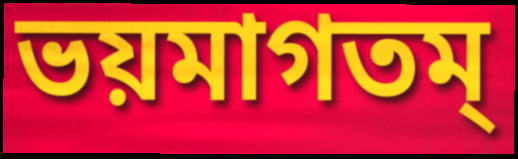
ভয়মাগতম্